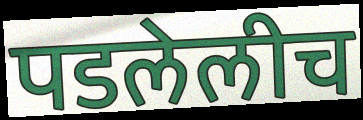
पडलेलीच